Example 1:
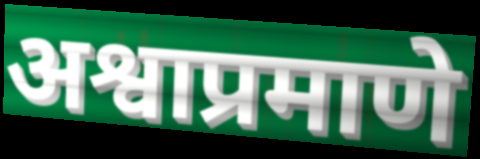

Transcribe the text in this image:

अश्वाप्रमाणे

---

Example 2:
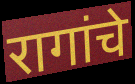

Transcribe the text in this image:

रागांचे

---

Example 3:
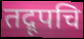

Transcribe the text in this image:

तद्रूपचि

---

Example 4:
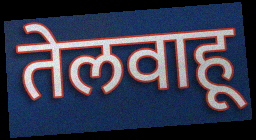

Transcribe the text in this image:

तेलवाहू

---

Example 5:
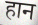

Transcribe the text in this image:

हान